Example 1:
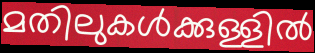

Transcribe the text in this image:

മതിലുകൾക്കുള്ളിൽ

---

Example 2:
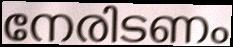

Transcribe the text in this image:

നേരിടണം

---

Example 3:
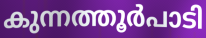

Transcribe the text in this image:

കുന്നത്തൂർപാടി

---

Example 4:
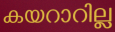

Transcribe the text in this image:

കയറാറില്ല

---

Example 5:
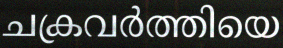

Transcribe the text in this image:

ചക്രവർത്തിയെ